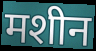
मशीन